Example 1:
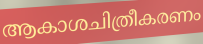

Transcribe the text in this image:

ആകാശചിത്രീകരണം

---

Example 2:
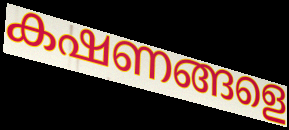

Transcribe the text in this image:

കഷണങ്ങളെ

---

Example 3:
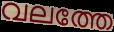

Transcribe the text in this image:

വലത്തേ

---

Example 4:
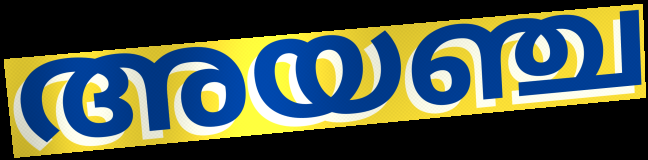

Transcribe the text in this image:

അയഞ്ച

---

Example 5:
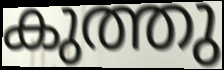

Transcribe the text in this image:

കുത്തു